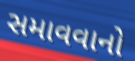
સમાવવાનો